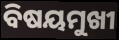
ବିଷୟମୁଖୀ